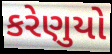
કરેણુયો